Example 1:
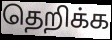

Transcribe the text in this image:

தெறிக்க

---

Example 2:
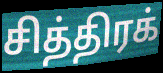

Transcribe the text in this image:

சித்திரக்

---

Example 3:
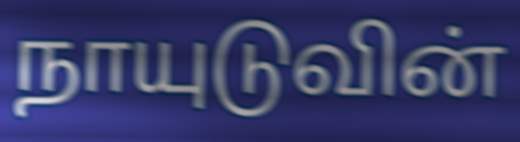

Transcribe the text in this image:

நாயுடுவின்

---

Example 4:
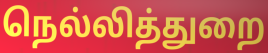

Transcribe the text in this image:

நெல்லித்துறை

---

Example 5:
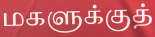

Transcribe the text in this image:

மகளுக்குத்